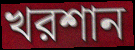
খরশান